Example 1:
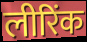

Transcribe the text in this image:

लीरिंक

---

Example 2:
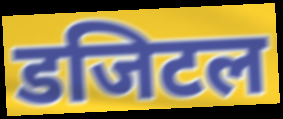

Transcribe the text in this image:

डजिटल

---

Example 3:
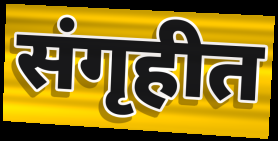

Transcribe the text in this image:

संगृहीत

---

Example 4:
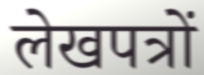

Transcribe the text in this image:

लेखपत्रों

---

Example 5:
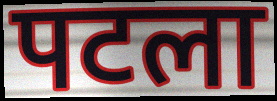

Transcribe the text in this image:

पटला